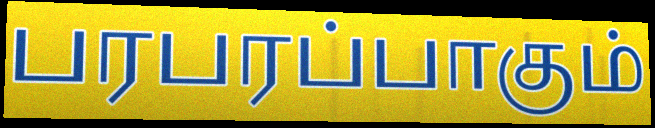
பரபரப்பாகும்